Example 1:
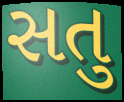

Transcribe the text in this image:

સતુ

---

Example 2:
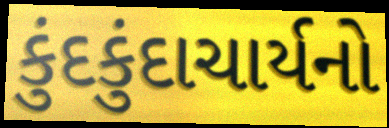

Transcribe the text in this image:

કુંદકુંદાચાર્યનો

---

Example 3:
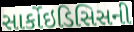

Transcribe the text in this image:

સાર્કોઇડિસિસની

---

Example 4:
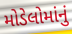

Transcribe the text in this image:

મોડેલોમાંનું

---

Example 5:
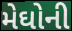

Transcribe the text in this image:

મેઘોની